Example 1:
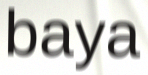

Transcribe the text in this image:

baya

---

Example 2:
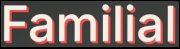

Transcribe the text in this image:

Familial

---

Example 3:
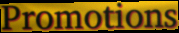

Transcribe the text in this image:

Promotions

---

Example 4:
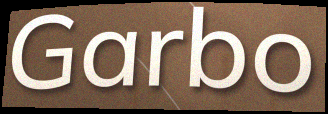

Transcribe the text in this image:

Garbo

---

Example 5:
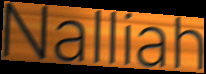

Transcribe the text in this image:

Nalliah